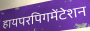
हायपरपिगमेंटेशन